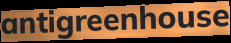
antigreenhouse